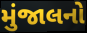
મુંજાલનો